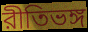
রীতিভঙ্গ